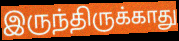
இருந்திருக்காது